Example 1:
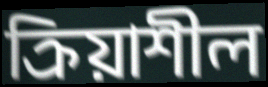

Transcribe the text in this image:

ক্রিয়াশীল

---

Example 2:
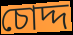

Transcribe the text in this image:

চোদ্দ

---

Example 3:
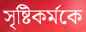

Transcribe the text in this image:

সৃষ্টিকর্মকে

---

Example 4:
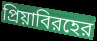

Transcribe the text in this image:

প্রিয়াবিরহের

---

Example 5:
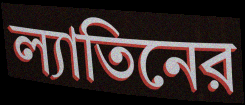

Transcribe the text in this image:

ল্যাতিনের